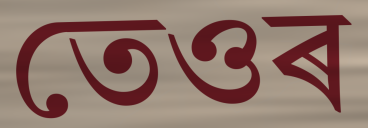
তেওৰ